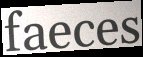
faeces